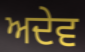
ਅਦੇਵ